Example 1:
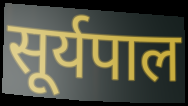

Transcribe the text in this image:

सूर्यपाल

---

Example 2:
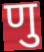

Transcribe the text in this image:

णु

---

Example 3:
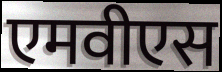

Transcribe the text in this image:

एमवीएस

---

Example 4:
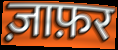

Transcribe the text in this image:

ज़ाफ़र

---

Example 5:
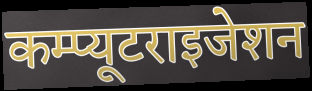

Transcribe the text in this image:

कम्प्यूटराइजेशन